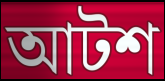
আটশ